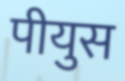
पीयुस